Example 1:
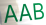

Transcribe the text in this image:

AAB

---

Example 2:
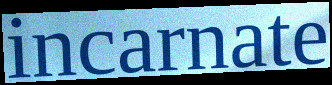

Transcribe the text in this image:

incarnate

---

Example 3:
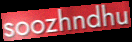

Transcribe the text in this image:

soozhndhu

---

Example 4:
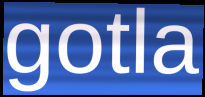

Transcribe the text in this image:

gotla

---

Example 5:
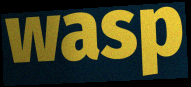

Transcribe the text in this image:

wasp